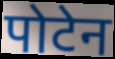
पोटेन